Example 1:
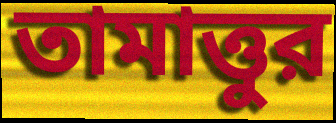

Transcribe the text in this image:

তামাত্তুর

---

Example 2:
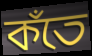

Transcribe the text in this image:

কঁতে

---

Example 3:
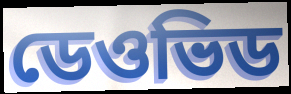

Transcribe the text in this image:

ডেওভিড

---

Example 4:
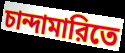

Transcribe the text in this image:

চান্দামারিতে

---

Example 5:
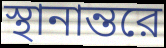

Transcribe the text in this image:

স্থানান্তরে